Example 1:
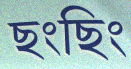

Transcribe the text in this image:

ছংছিং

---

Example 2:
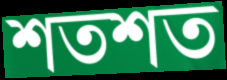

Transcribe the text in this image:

শতশত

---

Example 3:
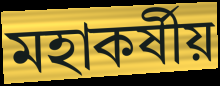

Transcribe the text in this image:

মহাকর্ষীয়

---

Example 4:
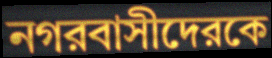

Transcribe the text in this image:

নগরবাসীদেরকে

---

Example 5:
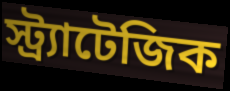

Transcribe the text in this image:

স্ট্র্যাটেজিক